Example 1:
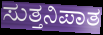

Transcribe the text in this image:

ಸುತ್ತನಿಪಾತ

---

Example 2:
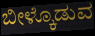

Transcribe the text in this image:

ಬೀಳ್ಕೊಡುವ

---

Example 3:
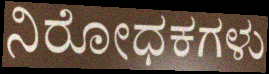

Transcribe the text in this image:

ನಿರೋಧಕಗಳು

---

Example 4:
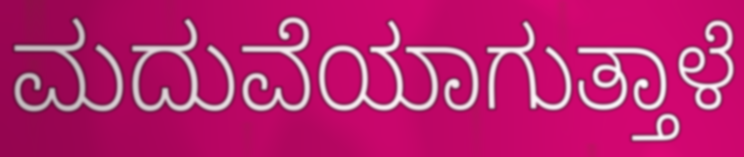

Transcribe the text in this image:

ಮದುವೆಯಾಗುತ್ತಾಳೆ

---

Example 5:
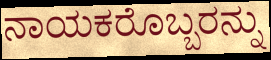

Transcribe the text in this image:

ನಾಯಕರೊಬ್ಬರನ್ನು